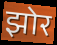
झोर